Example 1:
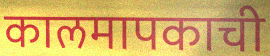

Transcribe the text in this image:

कालमापकाची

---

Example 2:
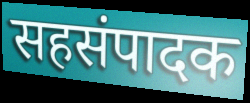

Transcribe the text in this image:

सहसंपादक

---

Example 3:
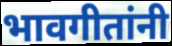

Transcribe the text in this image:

भावगीतांनी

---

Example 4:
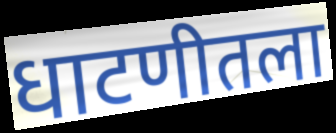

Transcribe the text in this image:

धाटणीतला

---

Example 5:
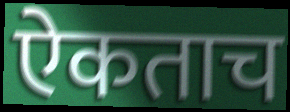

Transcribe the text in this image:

ऐकताच